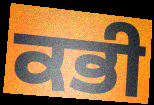
ਕਭੀ